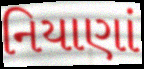
નિયાણાં